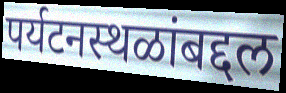
पर्यटनस्थळांबद्दल